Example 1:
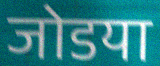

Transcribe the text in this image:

जोडया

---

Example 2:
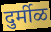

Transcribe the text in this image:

दुर्मीळ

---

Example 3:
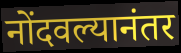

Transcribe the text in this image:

नोंदवल्यानंतर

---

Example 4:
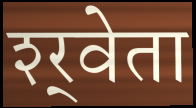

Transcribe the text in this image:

श्र्वेता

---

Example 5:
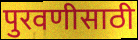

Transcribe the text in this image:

पुरवणीसाठी